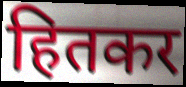
हितकर